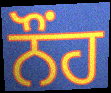
ਨੌੰਹ